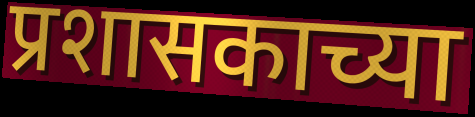
प्रशासकाच्या